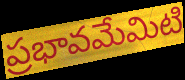
ప్రభావమేమిటి